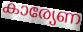
കാര്യേണ